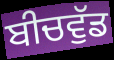
ਬੀਚਵੁੱਡ